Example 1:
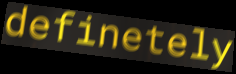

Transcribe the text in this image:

definetely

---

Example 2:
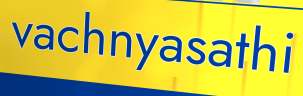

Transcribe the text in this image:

vachnyasathi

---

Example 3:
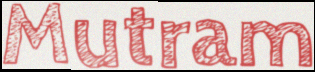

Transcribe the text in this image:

Mutram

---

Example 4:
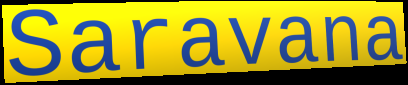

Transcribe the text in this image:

Saravana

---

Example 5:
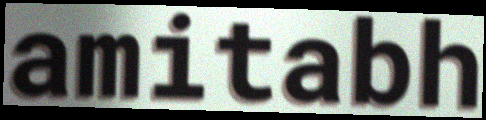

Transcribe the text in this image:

amitabh